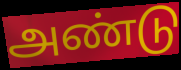
அண்டு